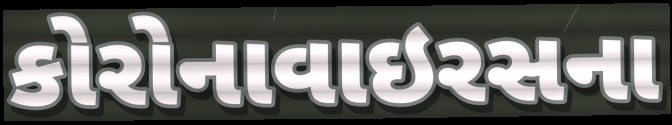
કોરોનાવાઇરસના